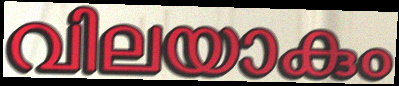
വിലയാകും